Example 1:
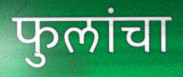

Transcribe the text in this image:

फुलांचा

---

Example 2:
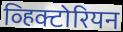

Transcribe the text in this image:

व्हिक्टोरियन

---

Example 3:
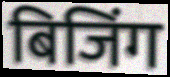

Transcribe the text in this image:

बिजिंग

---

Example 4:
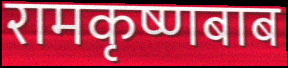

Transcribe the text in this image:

रामकृष्णबाब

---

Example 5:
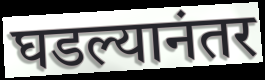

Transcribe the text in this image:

घडल्यानंतर